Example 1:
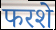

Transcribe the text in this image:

फरशे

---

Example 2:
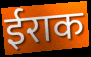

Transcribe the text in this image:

ईराक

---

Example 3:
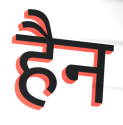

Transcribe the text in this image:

हैन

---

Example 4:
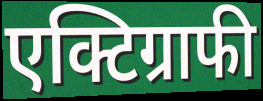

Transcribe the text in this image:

एक्टिग्राफी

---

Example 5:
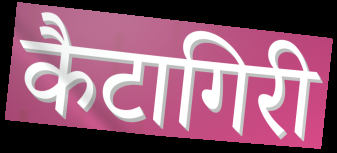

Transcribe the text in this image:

कैटागिरी